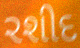
રશીદ